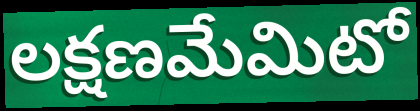
లక్షణమేమిటో